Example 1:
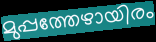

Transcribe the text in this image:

മുപ്പത്തേഴായിരം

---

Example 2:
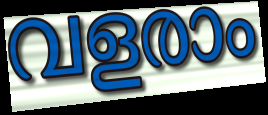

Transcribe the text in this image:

വളരാം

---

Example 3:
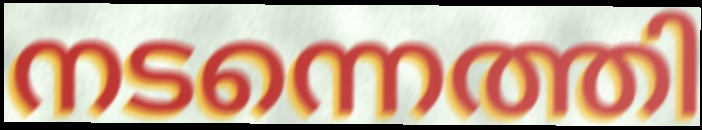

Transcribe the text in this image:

നടന്നെത്തി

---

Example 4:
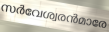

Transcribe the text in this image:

സർവേശ്വരൻമാരേ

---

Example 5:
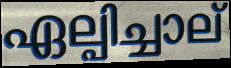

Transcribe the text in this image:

ഏല്പിച്ചാല്